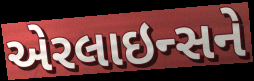
એરલાઇન્સને